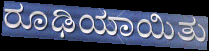
ರೂಢಿಯಾಯಿತು